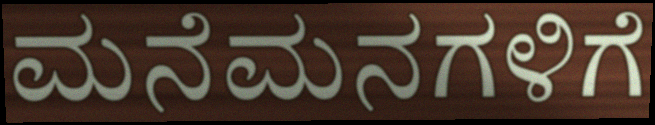
ಮನೆಮನಗಳಿಗೆ